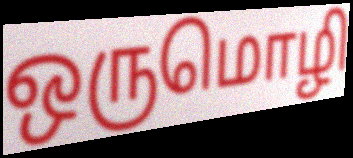
ஒருமொழி